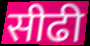
सीढी